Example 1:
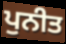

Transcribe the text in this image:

ਪੁਨੀਤ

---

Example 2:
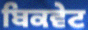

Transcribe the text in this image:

ਬਿਕਵੇਟ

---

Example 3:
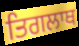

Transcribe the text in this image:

ਤਿਗਲਾਥ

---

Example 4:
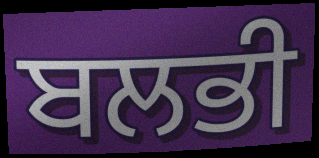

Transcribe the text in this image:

ਬਲਭੀ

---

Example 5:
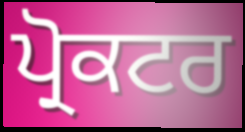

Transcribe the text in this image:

ਪ੍ਰੋਕਟਰ